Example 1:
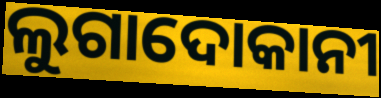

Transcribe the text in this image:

ଲୁଗାଦୋକାନୀ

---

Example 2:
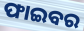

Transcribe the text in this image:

ଫାଇବର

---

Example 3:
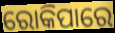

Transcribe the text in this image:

ରୋକିପାରେ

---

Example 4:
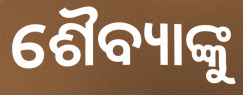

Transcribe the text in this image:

ଶୈବ୍ୟାଙ୍କୁ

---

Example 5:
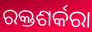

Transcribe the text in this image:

ରକ୍ତଶର୍କରା